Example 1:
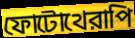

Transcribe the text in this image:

ফোটোথেরাপি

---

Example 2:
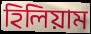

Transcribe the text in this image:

হিলিয়াম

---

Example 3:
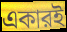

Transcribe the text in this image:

একারই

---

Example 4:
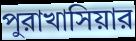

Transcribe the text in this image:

পুরাখাসিয়ার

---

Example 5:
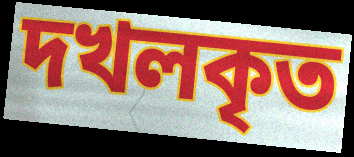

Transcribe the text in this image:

দখলকৃত